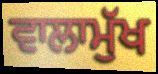
ਵਾਲਾਮੁੱਖ